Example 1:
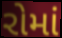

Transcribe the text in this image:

રોમાં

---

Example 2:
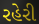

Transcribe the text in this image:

રહેરી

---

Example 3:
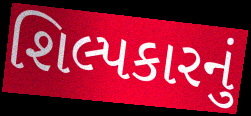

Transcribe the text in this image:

શિલ્પકારનું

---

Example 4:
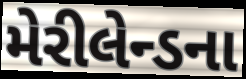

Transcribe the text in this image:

મેરીલેન્ડના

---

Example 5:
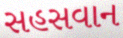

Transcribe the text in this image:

સહસવાન